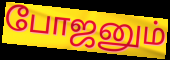
போஜனும்